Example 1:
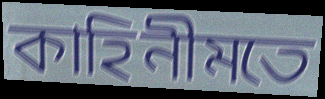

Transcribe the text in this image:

কাহিনীমতে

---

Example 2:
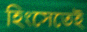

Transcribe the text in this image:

হিংসেতেই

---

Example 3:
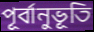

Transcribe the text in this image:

পূর্বানুভূতি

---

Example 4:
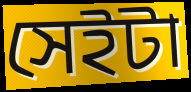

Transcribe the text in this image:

সেইটা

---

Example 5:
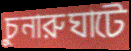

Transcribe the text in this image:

চুনারুঘাটে